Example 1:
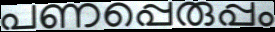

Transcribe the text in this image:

പണപ്പെരുപ്പം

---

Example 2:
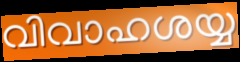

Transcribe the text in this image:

വിവാഹശയ്യ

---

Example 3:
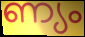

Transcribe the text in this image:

ണ്യം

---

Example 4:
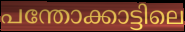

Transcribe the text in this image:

പന്തോക്കാട്ടിലെ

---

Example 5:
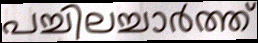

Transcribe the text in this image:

പച്ചിലച്ചാർത്ത്